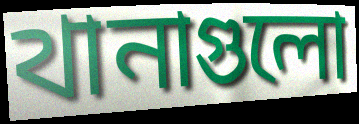
থানাগুলো